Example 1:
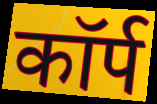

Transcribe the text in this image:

कॉर्प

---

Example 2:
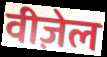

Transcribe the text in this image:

वीज़ेल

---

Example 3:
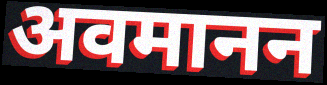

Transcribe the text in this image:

अवमानन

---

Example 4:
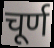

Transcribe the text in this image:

चूर्ण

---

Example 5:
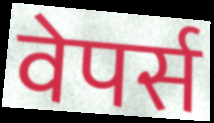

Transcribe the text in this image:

वेपर्स